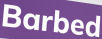
Barbed